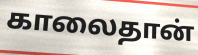
காலைதான்